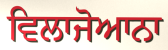
ਵਿਲਾਜੋਆਨਾ